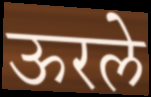
ऊरले